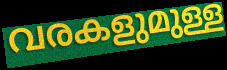
വരകളുമുള്ള